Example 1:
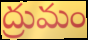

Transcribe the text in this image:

ద్రుమం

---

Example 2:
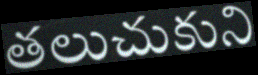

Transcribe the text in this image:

తలుచుకుని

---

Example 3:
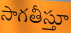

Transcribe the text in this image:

సాగతీస్తూ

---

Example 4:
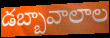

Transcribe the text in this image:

డబ్బావాలాల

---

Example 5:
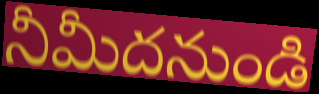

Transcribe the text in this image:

నీమీదనుండి